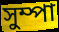
সুম্পা